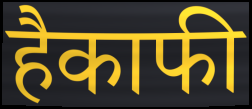
हैकाफी